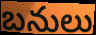
బనులు